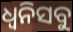
ଧ୍ୱନିସବୁ